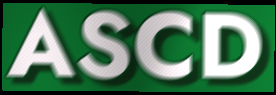
ASCD